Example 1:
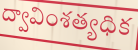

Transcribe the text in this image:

ద్వావింశత్యధిక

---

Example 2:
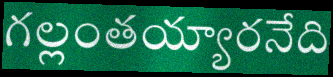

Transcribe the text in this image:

గల్లంతయ్యారనేది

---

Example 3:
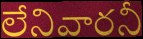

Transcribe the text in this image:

లేనివారనీ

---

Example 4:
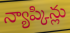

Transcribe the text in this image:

న్యాప్కిన్లు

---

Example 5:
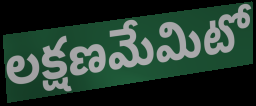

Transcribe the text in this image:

లక్షణమేమిటో